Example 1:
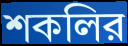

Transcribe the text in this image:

শকলির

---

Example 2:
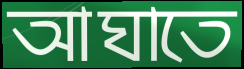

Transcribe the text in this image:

আঘাতে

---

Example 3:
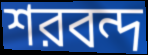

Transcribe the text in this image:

শরবন্দ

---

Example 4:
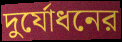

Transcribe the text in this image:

দুর্যোধনের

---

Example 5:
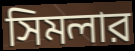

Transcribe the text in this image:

সিমলার